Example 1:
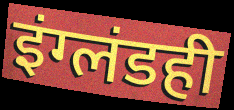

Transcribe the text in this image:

इंग्लंडही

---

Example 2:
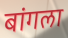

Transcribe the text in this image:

बांगला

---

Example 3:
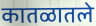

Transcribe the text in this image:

कातळातले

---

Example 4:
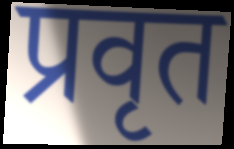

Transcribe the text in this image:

प्रवृत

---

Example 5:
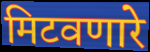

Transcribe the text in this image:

मिटवणारे